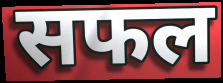
सफल